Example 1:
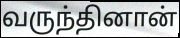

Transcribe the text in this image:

வருந்தினான்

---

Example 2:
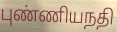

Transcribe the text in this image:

புண்ணியநதி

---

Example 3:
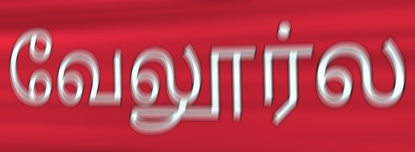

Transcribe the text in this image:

வேலூர்ல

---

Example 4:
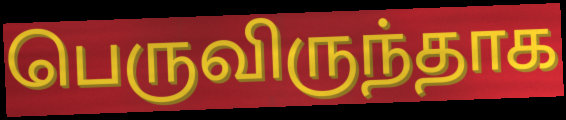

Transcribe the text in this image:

பெருவிருந்தாக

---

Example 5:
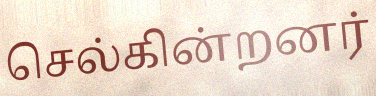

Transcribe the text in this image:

செல்கின்றனர்